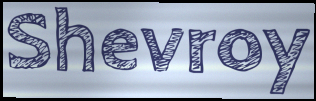
Shevroy